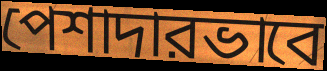
পেশাদারভাবে